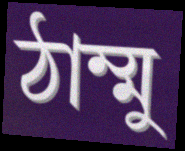
ঠাম্মু